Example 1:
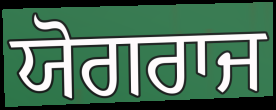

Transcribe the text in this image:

ਯੋਗਰਾਜ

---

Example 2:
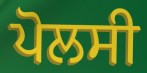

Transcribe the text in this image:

ਪੋਲਸੀ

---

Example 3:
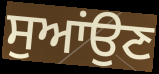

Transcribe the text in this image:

ਸੁਆਂਉਣ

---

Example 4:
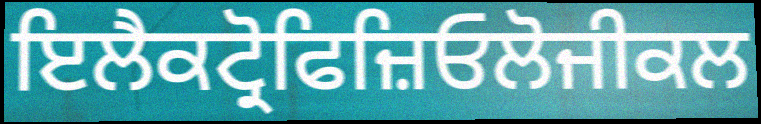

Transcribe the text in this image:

ਇਲੈਕਟ੍ਰੋਫਿਜ਼ਿਓਲੋਜੀਕਲ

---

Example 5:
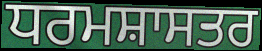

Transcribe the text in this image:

ਧਰਮਸ਼ਾਸਤਰ